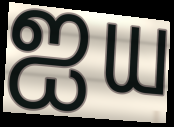
ஐய